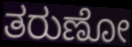
ತರುಣೋ